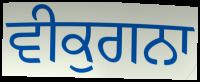
ਵੀਕੁਗਨਾ